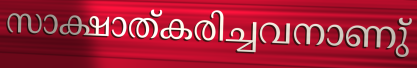
സാക്ഷാത്കരിച്ചവനാണു്